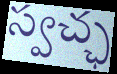
స్వచ్ఛ